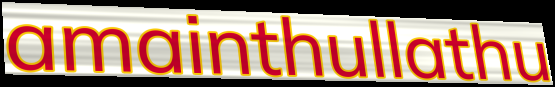
amainthullathu